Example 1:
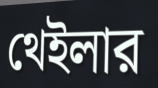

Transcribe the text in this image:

থেইলার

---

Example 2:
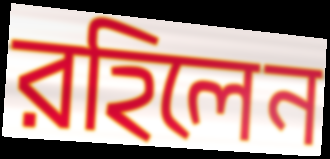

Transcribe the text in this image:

রহিলেন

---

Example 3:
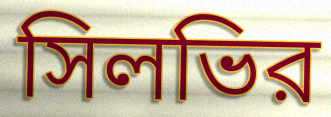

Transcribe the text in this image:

সিলভির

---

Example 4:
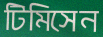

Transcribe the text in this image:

টিমিসেন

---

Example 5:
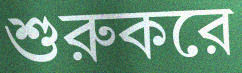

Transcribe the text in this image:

শুরুকরে